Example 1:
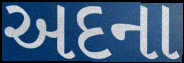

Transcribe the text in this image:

અદના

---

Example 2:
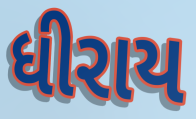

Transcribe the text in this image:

ધીરાય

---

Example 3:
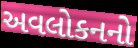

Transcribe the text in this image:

અવલોકનનો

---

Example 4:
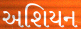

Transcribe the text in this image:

અશિયન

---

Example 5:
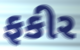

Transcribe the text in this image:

ફકીર